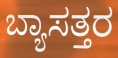
ಬ್ಯಾಸತ್ತರ